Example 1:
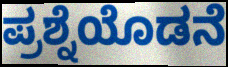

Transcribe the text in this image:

ಪ್ರಶ್ನೆಯೊಡನೆ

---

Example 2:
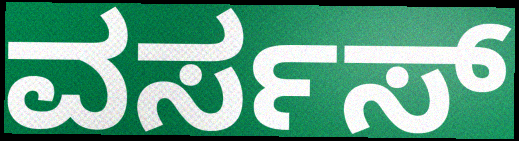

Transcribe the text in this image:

ವರ್ಸಸ್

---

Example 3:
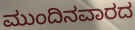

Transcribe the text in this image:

ಮುಂದಿನವಾರದ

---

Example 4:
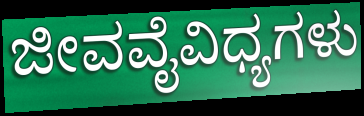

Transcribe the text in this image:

ಜೀವವೈವಿಧ್ಯಗಳು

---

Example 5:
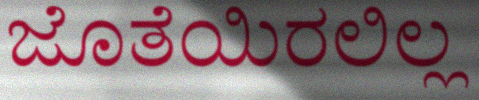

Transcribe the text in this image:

ಜೊತೆಯಿರಲಿಲ್ಲ